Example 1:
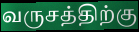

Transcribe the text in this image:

வருசத்திற்கு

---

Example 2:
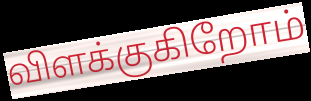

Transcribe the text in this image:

விளக்குகிறோம்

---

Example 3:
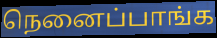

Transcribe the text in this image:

நெனைப்பாங்க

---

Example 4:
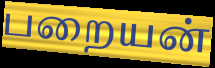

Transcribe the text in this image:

பறையன்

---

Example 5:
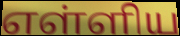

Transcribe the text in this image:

எள்ளிய